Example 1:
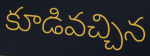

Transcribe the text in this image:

కూడివచ్చిన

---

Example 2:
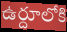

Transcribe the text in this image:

ఉర్దూలోకి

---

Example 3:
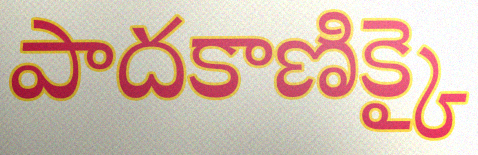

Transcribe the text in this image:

పాదకాణిక్కై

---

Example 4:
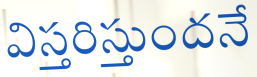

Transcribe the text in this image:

విస్తరిస్తుందనే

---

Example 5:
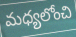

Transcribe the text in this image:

మధ్యలోంచి